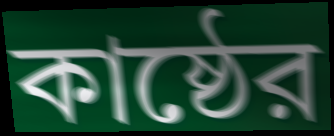
কাষ্ঠের